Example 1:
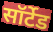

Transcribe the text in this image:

सॉर्टेड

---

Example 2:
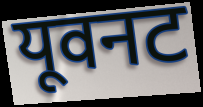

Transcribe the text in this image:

यूवनट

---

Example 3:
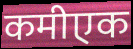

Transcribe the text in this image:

कमीएक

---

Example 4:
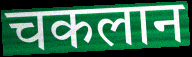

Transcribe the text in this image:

चकलान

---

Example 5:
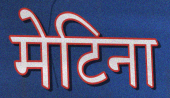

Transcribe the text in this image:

मेटिना